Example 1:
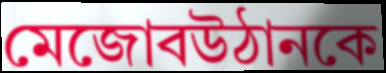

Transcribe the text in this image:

মেজোবউঠানকে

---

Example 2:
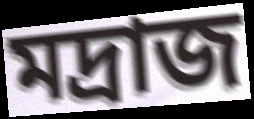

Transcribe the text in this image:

মদ্রাজ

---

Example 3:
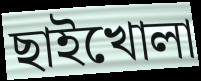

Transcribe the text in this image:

ছাইখোলা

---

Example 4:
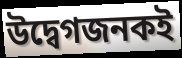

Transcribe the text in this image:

উদ্বেগজনকই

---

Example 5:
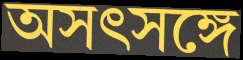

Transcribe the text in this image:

অসৎসঙ্গে